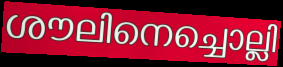
ശൗലിനെച്ചൊല്ലി